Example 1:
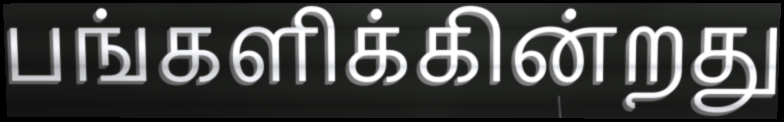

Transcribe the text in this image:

பங்களிக்கின்றது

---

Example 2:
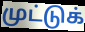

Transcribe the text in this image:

முட்டுக்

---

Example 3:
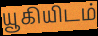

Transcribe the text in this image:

யூகியிடம்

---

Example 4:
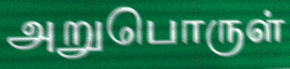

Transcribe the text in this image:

அறுபொருள்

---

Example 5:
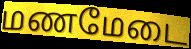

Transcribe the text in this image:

மணமேடை